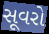
સૂવરો